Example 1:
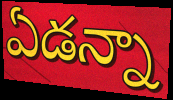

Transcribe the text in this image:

ఏడన్నా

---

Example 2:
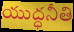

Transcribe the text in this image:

యుద్ధనీతి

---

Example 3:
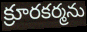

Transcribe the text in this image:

క్రూరకర్మను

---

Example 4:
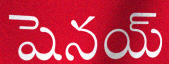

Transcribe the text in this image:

షెనయ్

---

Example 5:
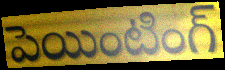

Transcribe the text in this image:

పెయింటింగ్